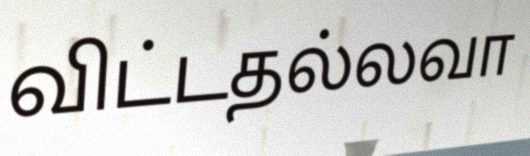
விட்டதல்லவா